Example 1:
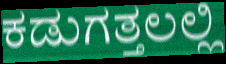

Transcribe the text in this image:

ಕಡುಗತ್ತಲಲ್ಲಿ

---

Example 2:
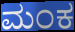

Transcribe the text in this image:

ಮಂಕ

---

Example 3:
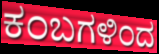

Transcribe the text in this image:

ಕಂಬಗಳಿಂದ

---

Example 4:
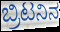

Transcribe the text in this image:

ಬ್ರಿಟನಿನ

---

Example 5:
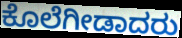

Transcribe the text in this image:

ಕೊಲೆಗೀಡಾದರು